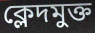
ক্লেদমুক্ত